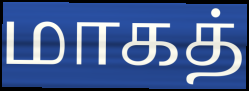
மாகத்